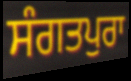
ਸੰਗਤਪੁਰਾ